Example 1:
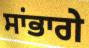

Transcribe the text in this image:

ਸਾਂਭਾਗੇ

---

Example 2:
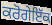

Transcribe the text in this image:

ਕਰੋਗੇਇੱਕ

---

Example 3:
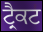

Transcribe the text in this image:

ਟ੍ਰੈਕਟ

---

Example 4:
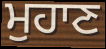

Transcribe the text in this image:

ਮੁਹਾਣ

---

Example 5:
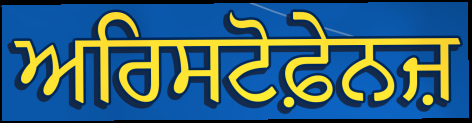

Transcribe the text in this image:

ਅਰਿਸਟੋਫ਼ੇਨਜ਼